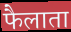
फैलाता